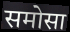
समोसा